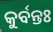
କୁର୍ବନ୍ତଃ